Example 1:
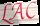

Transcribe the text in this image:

LAC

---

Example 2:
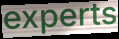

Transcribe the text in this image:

experts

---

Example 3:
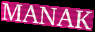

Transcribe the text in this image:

MANAK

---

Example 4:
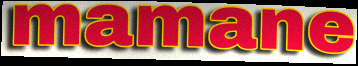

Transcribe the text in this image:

mamane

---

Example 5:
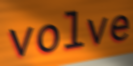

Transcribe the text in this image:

volve